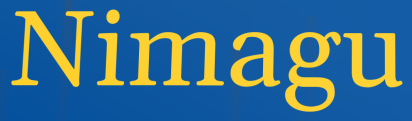
Nimagu